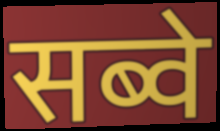
सब्वे